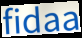
fidaa